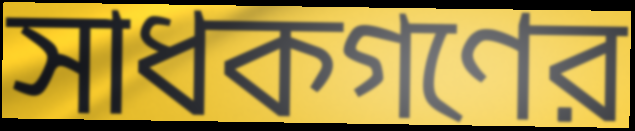
সাধকগণের